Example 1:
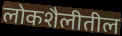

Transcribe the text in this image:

लोकशैलीतील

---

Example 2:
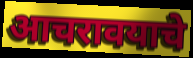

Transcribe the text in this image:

आचरावयाचे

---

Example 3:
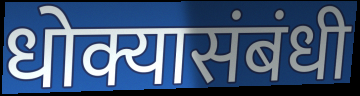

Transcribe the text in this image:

धोक्यासंबंधी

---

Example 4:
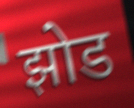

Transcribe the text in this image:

झोड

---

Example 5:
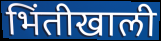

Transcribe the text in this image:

भिंतीखाली